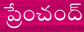
ప్రేంచంద్